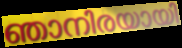
ഞാനിരയായി